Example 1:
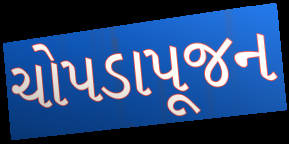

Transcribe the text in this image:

ચોપડાપૂજન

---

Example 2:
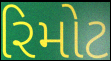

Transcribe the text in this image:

રિમોટ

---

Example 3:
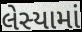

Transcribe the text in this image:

લેસ્યામાં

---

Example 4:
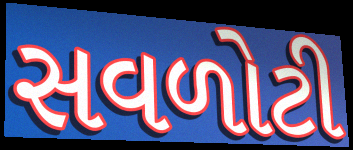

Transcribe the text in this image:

સવળોટી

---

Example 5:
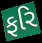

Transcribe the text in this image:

ફરિ